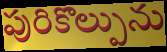
పురికొల్పును